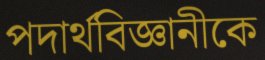
পদার্থবিজ্ঞানীকে